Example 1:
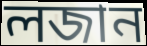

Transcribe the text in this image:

লজান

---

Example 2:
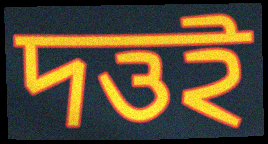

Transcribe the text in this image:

দত্তই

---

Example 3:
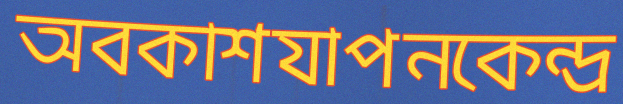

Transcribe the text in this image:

অবকাশযাপনকেন্দ্র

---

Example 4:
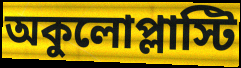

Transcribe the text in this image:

অকুলোপ্লাস্টি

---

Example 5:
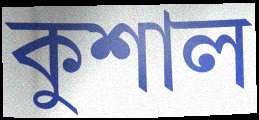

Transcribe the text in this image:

কুশাল